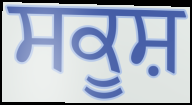
ਸਕੂਸ਼